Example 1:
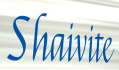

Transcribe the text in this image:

Shaivite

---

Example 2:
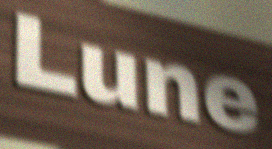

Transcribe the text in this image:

Lune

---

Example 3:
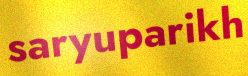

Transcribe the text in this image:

saryuparikh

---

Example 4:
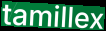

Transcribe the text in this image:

tamillex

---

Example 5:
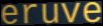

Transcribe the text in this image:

eruve